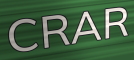
CRAR